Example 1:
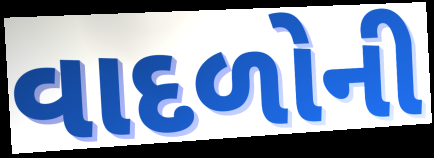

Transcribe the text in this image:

વાદળોની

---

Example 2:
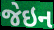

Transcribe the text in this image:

જેઇન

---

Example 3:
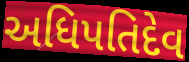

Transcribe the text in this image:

અધિપતિદેવ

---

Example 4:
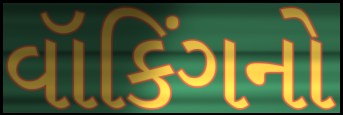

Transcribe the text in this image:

વૉકિંગનો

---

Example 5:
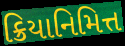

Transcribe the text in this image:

ક્રિયાનિમિત્ત